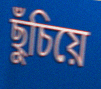
ছুঁচিয়ে